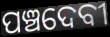
ପଞ୍ଚଦେବୀ